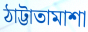
ঠাট্টাতামাশা